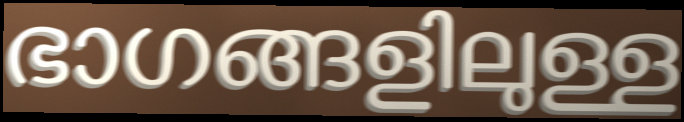
ഭാഗങ്ങളിലുള്ള